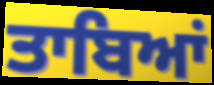
ਤਾਬਿਆਂ